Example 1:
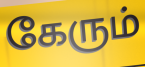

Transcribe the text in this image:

கேரும்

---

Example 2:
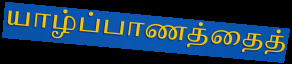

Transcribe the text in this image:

யாழ்ப்பாணத்தைத்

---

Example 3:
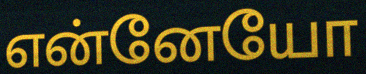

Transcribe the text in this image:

என்னேயோ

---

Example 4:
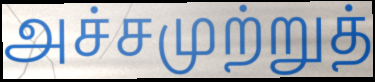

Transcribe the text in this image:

அச்சமுற்றுத்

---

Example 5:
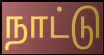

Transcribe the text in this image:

நாட்டு